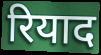
रियाद